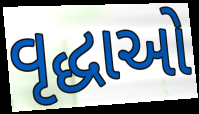
વૃદ્ધાઓ